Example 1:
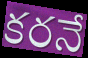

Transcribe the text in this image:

కరనే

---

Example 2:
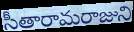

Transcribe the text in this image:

సీతారామరాజుని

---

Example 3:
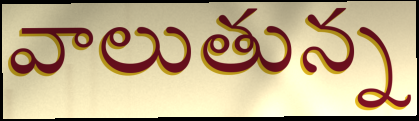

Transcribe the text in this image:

వాలుతున్న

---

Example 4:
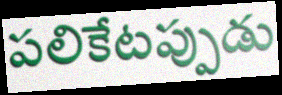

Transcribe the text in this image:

పలికేటప్పుడు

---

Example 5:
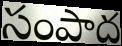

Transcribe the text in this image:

సంపాద